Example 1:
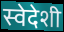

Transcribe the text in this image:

स्वेदेशी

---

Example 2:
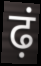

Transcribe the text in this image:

ढ़ं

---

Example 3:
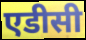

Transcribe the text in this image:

एडीसी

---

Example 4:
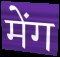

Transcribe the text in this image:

मेंग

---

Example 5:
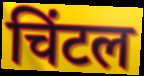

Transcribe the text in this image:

चिंटल